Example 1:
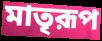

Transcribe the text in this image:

মাতৃরূপ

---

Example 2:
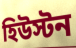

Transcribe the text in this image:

হিউস্টন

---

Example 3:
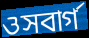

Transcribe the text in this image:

ওসবার্গ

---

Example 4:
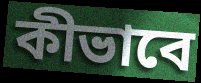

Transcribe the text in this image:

কীভাবে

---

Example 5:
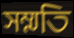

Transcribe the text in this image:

সম্মতি